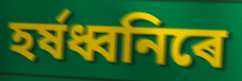
হৰ্ষধ্বনিৰে